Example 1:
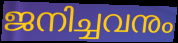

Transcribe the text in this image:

ജനിച്ചവനും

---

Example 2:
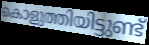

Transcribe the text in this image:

കൊളുത്തിയിട്ടുണ്ട്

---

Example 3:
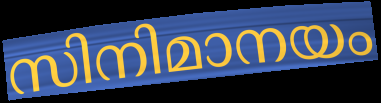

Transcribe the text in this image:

സിനിമാനയം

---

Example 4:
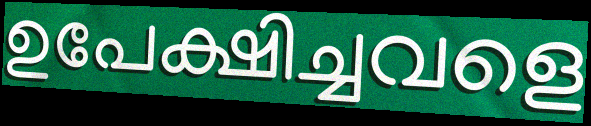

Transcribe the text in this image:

ഉപേക്ഷിച്ചവളെ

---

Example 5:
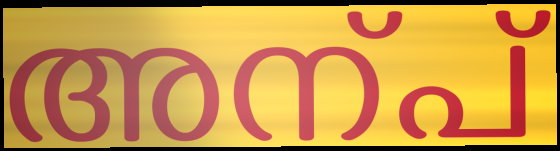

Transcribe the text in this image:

അന്പ്